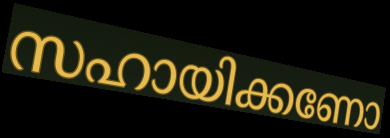
സഹായിക്കണോ